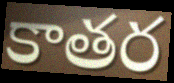
కాతర